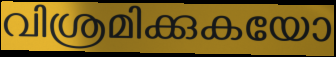
വിശ്രമിക്കുകയോ